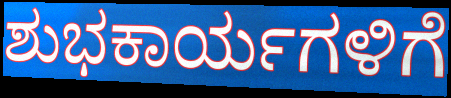
ಶುಭಕಾರ್ಯಗಳಿಗೆ